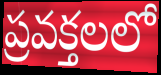
ప్రవక్తలలో